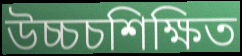
উচ্চচশিক্ষিত